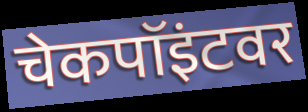
चेकपॉइंटवर